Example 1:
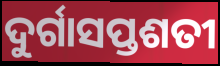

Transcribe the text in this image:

ଦୁର୍ଗାସପ୍ତଶତୀ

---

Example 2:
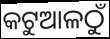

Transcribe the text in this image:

କଟୁଆଳଠୁଁ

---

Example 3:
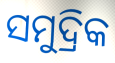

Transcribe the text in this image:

ସମୁଦ୍ରିକ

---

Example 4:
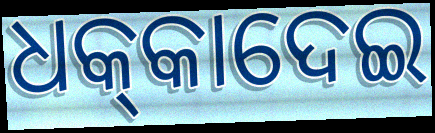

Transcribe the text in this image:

ଧକ୍‌କାଦେଇ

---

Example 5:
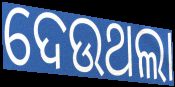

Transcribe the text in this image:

ଦେଉଥଲା